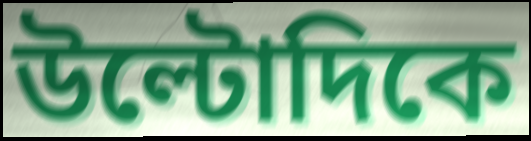
উল্টোদিকে